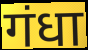
गंधा